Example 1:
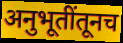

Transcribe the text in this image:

अनुभूतींतूनच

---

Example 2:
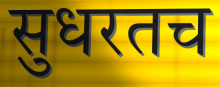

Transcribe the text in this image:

सुधरतच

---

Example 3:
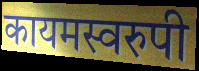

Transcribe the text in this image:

कायमस्वरुपी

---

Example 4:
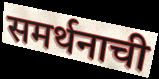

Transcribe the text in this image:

समर्थनाची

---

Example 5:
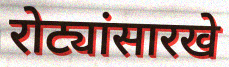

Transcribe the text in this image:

रोट्यांसारखे